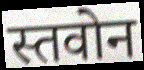
स्तवोन